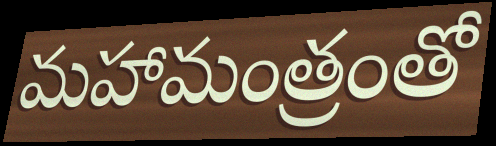
మహామంత్రంతో